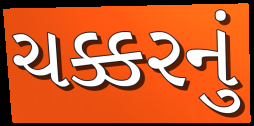
ચક્કરનું